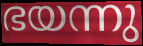
ഭയന്നു